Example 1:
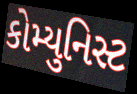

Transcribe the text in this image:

કોમ્યુનિસ્ટ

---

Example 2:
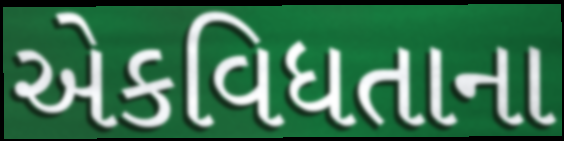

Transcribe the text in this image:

એકવિધતાના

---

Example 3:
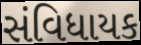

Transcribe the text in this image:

સંવિધાયક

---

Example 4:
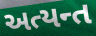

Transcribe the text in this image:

અત્યન્ત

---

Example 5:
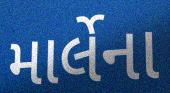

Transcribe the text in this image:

માર્લેના